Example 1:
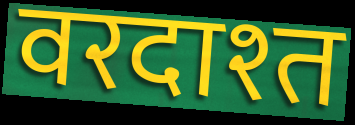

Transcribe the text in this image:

वरदाश्त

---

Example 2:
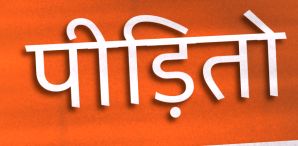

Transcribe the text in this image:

पीड़ितो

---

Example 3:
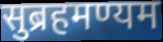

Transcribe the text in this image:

सुब्रहमण्यम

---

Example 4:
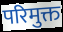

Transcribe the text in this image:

परिमुक्त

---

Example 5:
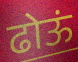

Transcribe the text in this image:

ढोऊं